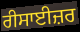
ਰੀਸਾਈਜ਼ਰ